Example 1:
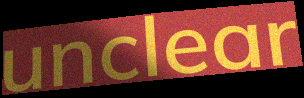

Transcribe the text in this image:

unclear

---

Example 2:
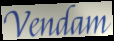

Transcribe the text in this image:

Vendam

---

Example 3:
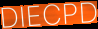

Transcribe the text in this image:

DIECPD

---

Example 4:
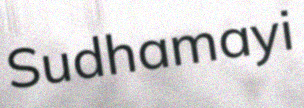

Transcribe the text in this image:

Sudhamayi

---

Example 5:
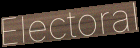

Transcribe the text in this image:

Electoral